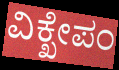
ವಿಕ್ಖೇಪಂ